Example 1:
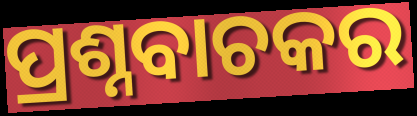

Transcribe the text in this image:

ପ୍ରଶ୍ନବାଚକର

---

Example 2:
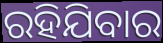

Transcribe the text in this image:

ରହିଯିବାର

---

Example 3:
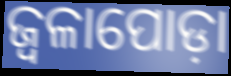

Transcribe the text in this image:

ଜ୍ୱଳାପୋଡ଼ା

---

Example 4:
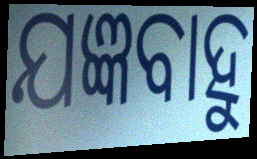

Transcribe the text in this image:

ଯଜ୍ଞବାହୁ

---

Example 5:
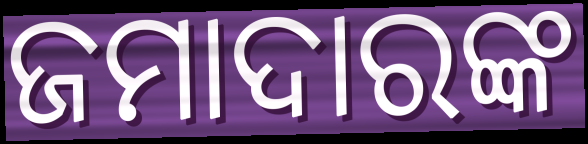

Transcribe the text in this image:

ଜମାଦାରଙ୍କ